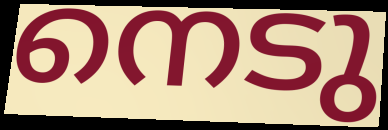
നെടു